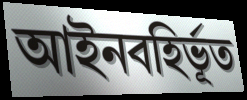
আইনবহির্ভূত